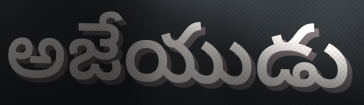
అజేయుడు